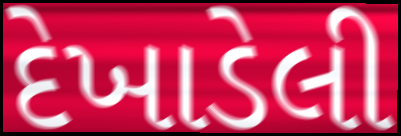
દેખાડેલી